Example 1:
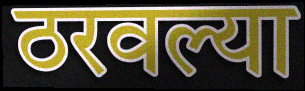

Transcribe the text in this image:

ठरवल्या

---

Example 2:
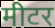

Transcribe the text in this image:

मीटर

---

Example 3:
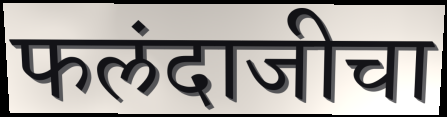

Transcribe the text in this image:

फलंदाजीचा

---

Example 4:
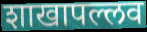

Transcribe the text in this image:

शाखापल्लव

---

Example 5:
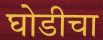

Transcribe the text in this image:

घोडीचा